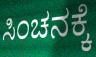
ಸಿಂಚನಕ್ಕೆ